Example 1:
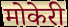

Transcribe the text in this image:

मोकेरी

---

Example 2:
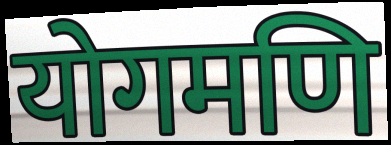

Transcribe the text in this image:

योगमणि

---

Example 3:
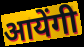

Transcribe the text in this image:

आयेंगी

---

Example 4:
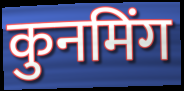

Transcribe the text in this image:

कुनमिंग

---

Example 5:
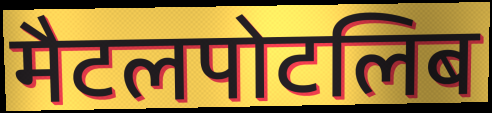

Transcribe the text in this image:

मैटलपोटलिब